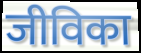
जीविका